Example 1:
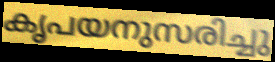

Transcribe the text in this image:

കൃപയനുസരിച്ചു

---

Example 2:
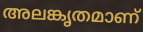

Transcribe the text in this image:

അലങ്കൃതമാണ്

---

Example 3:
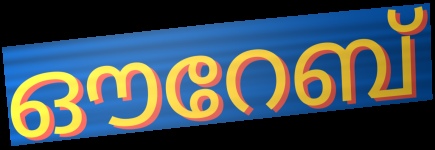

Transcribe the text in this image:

ഔറേബ്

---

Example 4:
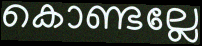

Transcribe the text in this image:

കൊണ്ടല്ലേ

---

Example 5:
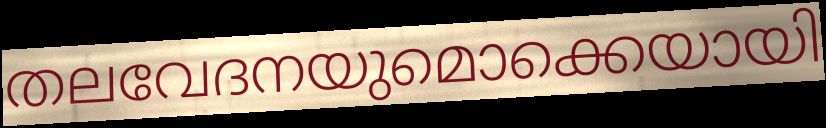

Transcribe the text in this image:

തലവേദനയുമൊക്കെയായി